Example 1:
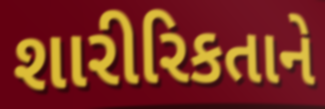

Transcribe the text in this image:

શારીરિકતાને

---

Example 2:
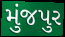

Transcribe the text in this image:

મુંજપુર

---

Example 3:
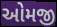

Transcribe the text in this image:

ઓમજી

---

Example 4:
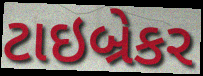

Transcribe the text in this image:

ટાઇબ્રેકર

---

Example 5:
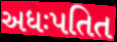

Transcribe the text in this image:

અધઃપતિત